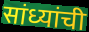
सांध्यांची